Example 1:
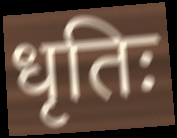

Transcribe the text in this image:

धृतिः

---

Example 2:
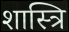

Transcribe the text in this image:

शास्त्रि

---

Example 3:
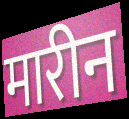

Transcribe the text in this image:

मारीन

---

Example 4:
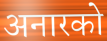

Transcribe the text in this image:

अनारको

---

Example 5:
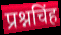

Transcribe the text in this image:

प्रश्नचिंह